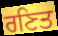
ਰਣਿਤ